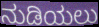
ನುಡಿಯಲು